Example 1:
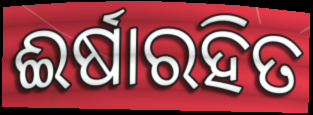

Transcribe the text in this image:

ଈର୍ଷାରହିତ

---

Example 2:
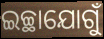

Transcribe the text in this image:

ଇଚ୍ଛାଯୋଗୁଁ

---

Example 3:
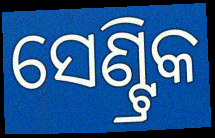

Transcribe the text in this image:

ସେଣ୍ଟ୍ରିକ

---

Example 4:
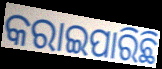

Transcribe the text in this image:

କରାଇପାରିଛି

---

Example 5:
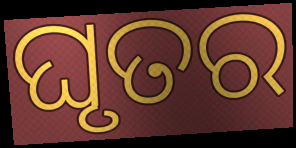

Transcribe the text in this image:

ଘୃତର